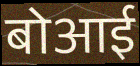
बोआई